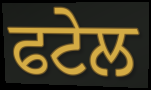
ਫਟੇਲ